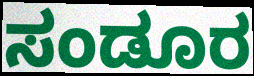
ಸಂಡೂರ